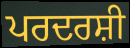
ਪਰਦਰਸ਼ੀ